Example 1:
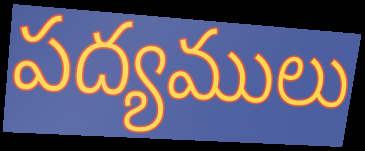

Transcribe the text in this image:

పద్యములు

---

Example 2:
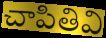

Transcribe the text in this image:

చాపితివి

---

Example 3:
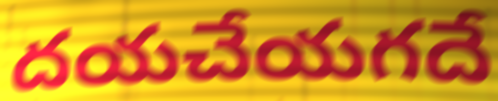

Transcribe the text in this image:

దయచేయగదే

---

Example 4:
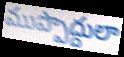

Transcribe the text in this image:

ముప్పొద్దులా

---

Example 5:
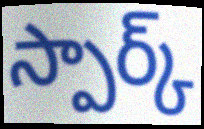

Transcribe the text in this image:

స్పార్క్